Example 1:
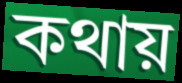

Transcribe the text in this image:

কথায়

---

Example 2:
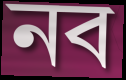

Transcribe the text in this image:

নব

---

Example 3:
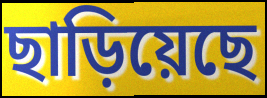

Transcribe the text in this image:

ছাড়িয়েছে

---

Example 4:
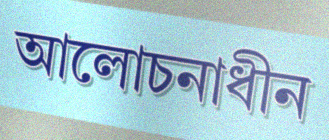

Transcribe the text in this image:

আলোচনাধীন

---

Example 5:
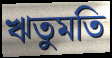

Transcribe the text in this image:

ঋতুমতি